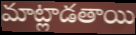
మాట్లాడతాయి